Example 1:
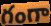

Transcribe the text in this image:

గంగా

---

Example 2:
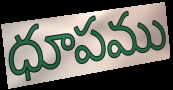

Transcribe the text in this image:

ధూపము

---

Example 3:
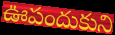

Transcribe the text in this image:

ఊపందుకుని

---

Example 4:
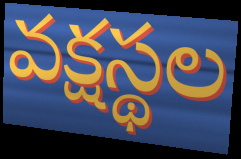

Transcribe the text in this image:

వక్షస్థల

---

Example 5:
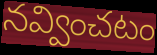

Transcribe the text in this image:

నవ్వించటం